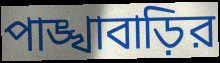
পাঙ্খাবাড়ির